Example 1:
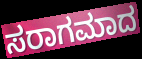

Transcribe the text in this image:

ಸರಾಗಮಾದ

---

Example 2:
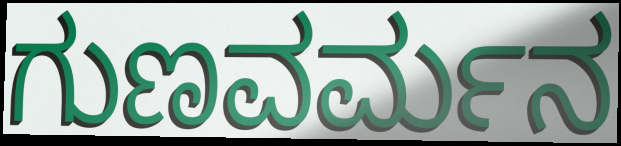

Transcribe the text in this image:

ಗುಣವರ್ಮನ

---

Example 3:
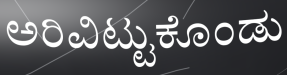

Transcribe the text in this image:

ಅರಿವಿಟ್ಟುಕೊಂಡು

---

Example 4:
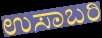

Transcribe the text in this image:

ಉಸಾಬರಿ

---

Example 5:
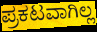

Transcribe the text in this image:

ಪ್ರಕಟವಾಗಿಲ್ಲ